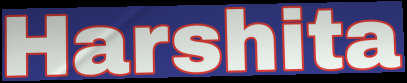
Harshita